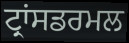
ਟ੍ਰਾਂਸਡਰਮਲ